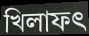
খিলাফৎ